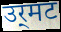
उर्मट